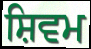
ਸ਼ਿਵਮ